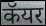
कॅयर